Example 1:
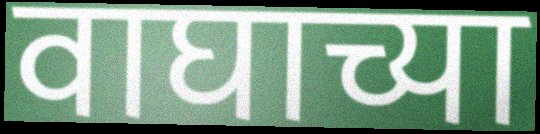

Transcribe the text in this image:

वाघाच्या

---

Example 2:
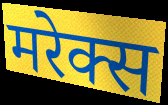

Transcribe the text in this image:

मरेक्स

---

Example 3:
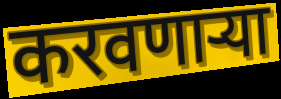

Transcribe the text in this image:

करवणाऱ्या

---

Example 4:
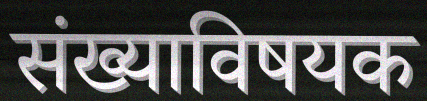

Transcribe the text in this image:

संख्याविषयक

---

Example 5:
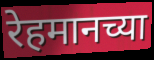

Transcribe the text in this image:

रेहमानच्या